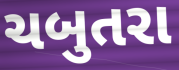
ચબુતરા